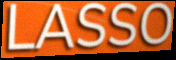
LASSO